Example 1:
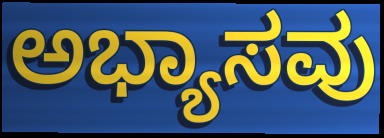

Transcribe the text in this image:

ಅಭ್ಯಾಸವು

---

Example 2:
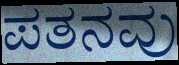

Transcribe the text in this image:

ಪತನವು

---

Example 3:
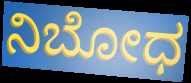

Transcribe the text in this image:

ನಿಬೋಧ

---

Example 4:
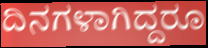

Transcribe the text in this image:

ದಿನಗಳಾಗಿದ್ದರೂ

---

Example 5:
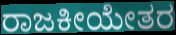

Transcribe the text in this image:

ರಾಜಕೀಯೇತರ